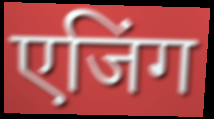
एजिंग